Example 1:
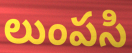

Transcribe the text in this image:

లుంపసి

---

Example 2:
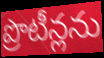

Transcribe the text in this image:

ప్రొటీన్లను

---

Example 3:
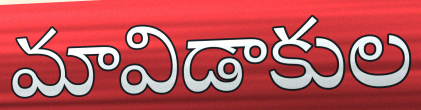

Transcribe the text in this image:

మావిడాకుల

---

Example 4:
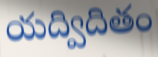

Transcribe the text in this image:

యద్విదితం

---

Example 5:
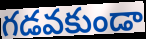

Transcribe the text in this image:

గడవకుండా